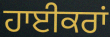
ਹਾਈਕਰਾਂ